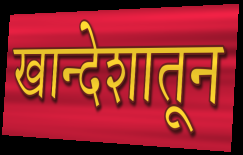
खान्देशातून